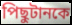
পিছুটানকে